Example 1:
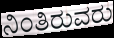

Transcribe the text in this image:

ನಿಂತಿರುವರು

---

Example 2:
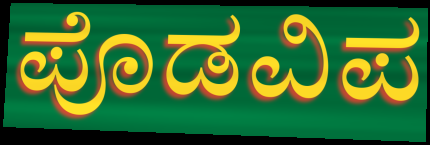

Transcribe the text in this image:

ಪೊಡವಿಪ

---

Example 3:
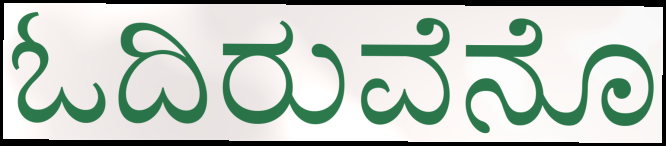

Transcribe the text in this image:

ಓದಿರುವೆನೊ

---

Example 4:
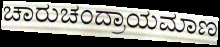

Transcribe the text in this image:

ಚಾರುಚಂದ್ರಾಯಮಾಣ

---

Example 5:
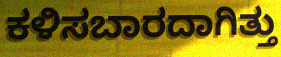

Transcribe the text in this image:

ಕಳಿಸಬಾರದಾಗಿತ್ತು